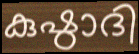
കുഷ്ഠാദി